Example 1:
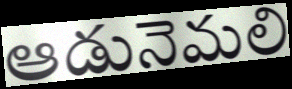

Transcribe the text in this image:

ఆడునెమలి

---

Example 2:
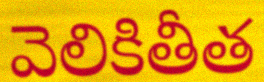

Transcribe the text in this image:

వెలికితీత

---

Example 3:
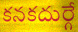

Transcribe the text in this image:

కనకదుర్గే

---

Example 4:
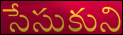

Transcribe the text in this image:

సేసుకుని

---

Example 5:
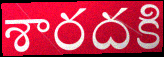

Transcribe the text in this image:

శారదకి